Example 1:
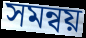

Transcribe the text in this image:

সমন্বয়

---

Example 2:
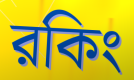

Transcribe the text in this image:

রকিং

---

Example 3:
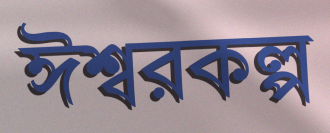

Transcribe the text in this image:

ঈশ্বরকল্প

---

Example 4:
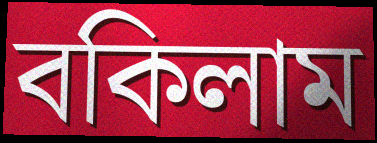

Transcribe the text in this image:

বকিলাম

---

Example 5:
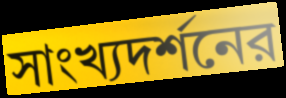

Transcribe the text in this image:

সাংখ্যদর্শনের